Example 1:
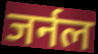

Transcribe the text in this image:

जर्नल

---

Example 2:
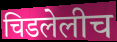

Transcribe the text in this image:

चिडलेलीच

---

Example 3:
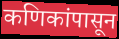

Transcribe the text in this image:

कणिकांपासून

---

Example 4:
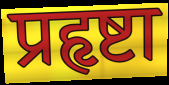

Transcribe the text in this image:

प्रहृष्टा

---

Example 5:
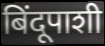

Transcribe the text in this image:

बिंदूपाशी